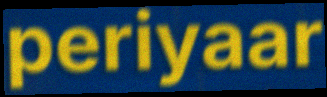
periyaar